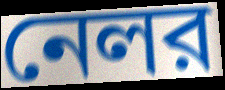
নেলর